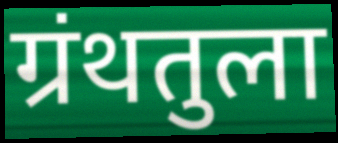
ग्रंथतुला